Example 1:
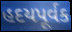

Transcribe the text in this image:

હદયપૂર્વક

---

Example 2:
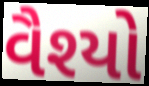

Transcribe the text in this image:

વૈશ્યો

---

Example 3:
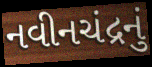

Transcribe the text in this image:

નવીનચંદ્રનું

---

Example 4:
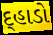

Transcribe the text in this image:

દ્હાડો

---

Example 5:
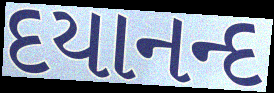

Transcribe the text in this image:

દયાનન્દ